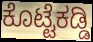
ಕೊಟ್ಟೆಕಡ್ಡಿ